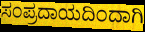
ಸಂಪ್ರದಾಯದಿಂದಾಗಿ